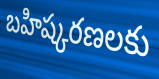
బహిష్కరణలకు